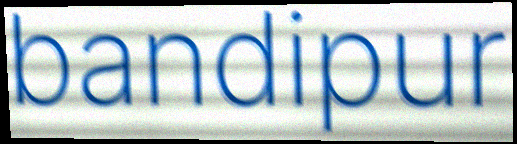
bandipur